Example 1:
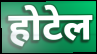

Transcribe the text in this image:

होटेल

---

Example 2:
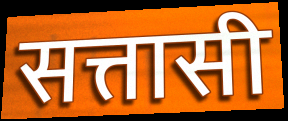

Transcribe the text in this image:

सत्तासी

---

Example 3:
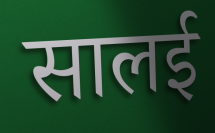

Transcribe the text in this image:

सालई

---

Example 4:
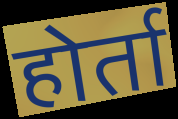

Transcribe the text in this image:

होर्ता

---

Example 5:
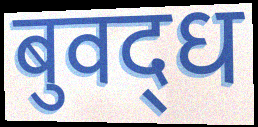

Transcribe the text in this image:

बुवद्ध